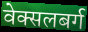
वेक्सलबर्ग